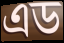
এড